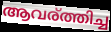
ആവര്ത്തിച്ച